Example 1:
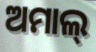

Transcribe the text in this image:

ଅମାଲ୍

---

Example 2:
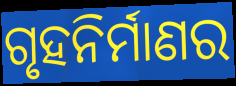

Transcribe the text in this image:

ଗୃହନିର୍ମାଣର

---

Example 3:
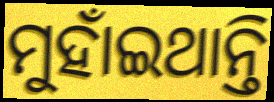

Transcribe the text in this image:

ମୁହାଁଇଥାନ୍ତି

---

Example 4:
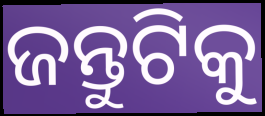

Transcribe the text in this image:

ଜନ୍ତୁଟିକୁ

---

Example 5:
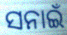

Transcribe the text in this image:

ସନାଇଁ